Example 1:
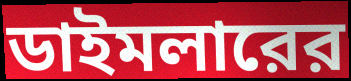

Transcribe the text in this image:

ডাইমলারের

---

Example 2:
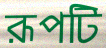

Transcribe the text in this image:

রূপটি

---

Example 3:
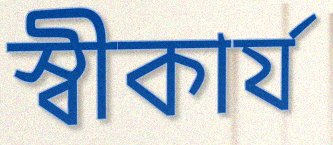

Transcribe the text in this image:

স্বীকার্য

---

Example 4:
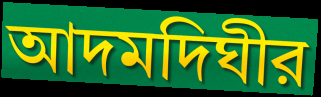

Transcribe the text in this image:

আদমদিঘীর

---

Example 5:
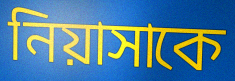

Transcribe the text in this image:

নিয়াসাকে